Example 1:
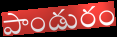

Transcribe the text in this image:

పాండురం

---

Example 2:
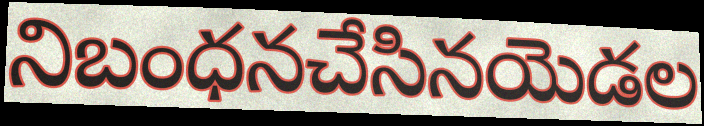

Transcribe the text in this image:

నిబంధనచేసినయెడల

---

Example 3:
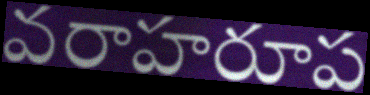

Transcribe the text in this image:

వరాహరూప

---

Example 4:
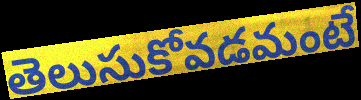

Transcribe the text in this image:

తెలుసుకోవడమంటే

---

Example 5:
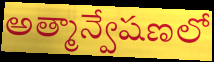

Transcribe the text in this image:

అత్మాన్వేషణలో